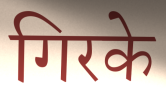
गिरके